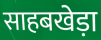
साहबखेड़ा